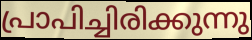
പ്രാപിച്ചിരിക്കുന്നു